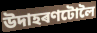
উদাহৰণটোলৈ